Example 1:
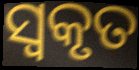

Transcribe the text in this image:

ସ୍ୱକୃତ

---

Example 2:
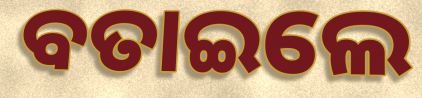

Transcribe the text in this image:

ବତାଇଲେ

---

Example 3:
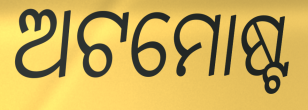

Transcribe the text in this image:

ଅଟମୋଷ୍ଟ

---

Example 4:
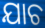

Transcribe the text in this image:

ଯାଚ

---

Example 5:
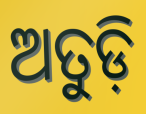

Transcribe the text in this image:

ଅତୁଡ଼ି